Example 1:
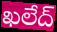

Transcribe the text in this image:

ఖలేద్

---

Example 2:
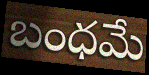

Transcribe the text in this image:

బంధమే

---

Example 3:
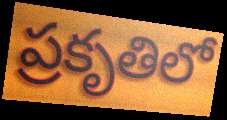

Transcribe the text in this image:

ప్రకృతిలో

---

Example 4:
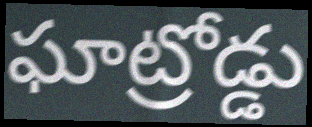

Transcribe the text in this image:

ఘాట్రోడ్డు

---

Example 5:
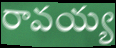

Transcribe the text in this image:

రావయ్య